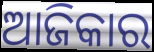
ଆଜିକାର